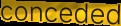
conceded